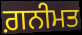
ਗ਼ਨੀਮਤ